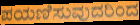
ಪಯಣಿಸುವುದರಿಂದ